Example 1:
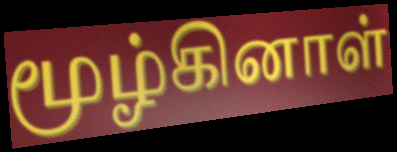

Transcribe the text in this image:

மூழ்கினாள்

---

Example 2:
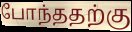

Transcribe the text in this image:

போந்ததற்கு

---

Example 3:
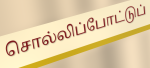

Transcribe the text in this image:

சொல்லிப்போட்டுப்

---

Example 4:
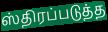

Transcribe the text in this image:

ஸ்திரப்படுத்த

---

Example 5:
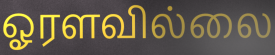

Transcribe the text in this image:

ஓரளவில்லை